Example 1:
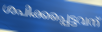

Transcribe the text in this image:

ശപിക്കപ്പെട്ടവന്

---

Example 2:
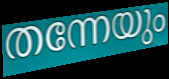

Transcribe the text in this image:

തന്നേയും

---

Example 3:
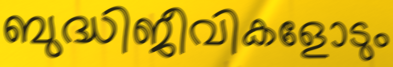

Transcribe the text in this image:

ബുദ്ധിജീവികളോടും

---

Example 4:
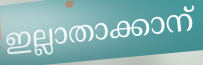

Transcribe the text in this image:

ഇല്ലാതാക്കാന്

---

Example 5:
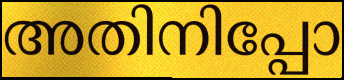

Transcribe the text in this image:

അതിനിപ്പോ